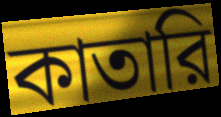
কাতারি